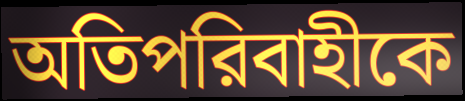
অতিপরিবাহীকে